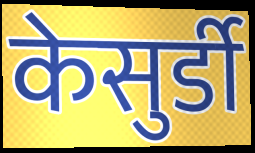
केसुर्डी